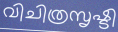
വിചിത്രസൃഷ്ടി